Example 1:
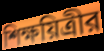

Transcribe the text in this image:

শিক্ষয়িত্রীর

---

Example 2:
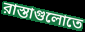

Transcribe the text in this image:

রাস্তাগুলোতে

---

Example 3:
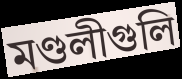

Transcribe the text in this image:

মণ্ডলীগুলি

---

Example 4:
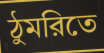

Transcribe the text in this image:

ঠুমরিতে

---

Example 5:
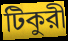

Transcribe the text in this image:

টিকুরী